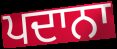
ਪਦਾਨਾ